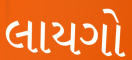
લાયગો